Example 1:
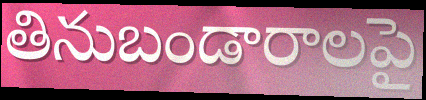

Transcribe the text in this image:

తినుబండారాలపై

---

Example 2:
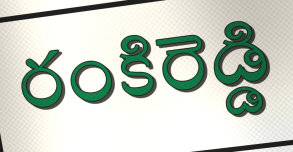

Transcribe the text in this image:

రంకిరెడ్డి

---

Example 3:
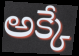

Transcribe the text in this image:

అక్కే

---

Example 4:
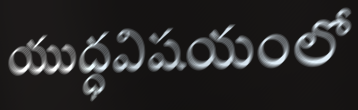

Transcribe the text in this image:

యుద్ధవిషయంలో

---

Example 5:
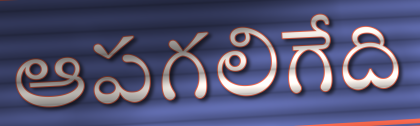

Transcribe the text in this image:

ఆపగలిగేది